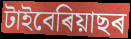
টাইবেৰিয়াছৰ